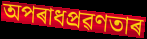
অপৰাধপ্ৰৱণতাৰ